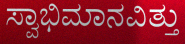
ಸ್ವಾಭಿಮಾನವಿತ್ತು